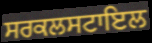
ਸਰਕਲਸਟਾਇਲ